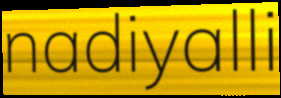
nadiyalli